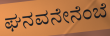
ಘನವನೇನೆಂಬೆ